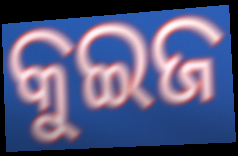
କୁଇଜ